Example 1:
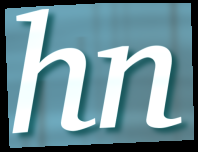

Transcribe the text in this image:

hn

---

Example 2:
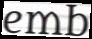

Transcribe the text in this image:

emb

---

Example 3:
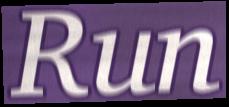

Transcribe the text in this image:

Run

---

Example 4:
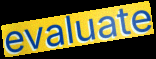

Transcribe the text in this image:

evaluate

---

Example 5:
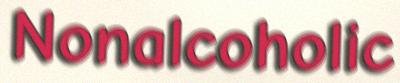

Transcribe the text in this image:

Nonalcoholic